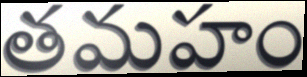
తమహం